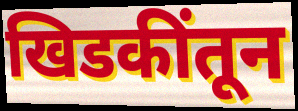
खिडकींतून